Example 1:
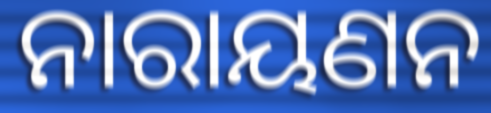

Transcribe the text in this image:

ନାରାୟଣନ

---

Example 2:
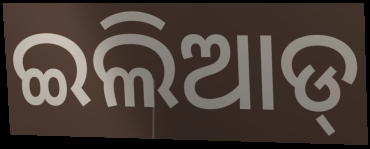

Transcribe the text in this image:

ଇଲିଆଡ୍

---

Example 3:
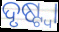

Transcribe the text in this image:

ଦୃଷ୍ଟ୍ବା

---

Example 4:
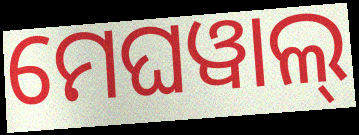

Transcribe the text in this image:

ମେଘୱାଲ୍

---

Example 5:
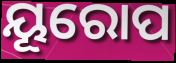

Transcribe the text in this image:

ୟୂରୋପ